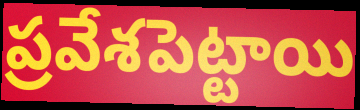
ప్రవేశపెట్టాయి